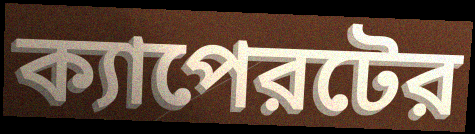
ক্যাপেরটের